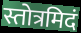
स्तोत्रमिदं